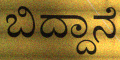
ಬಿದ್ದಾನೆ